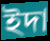
ইদা